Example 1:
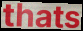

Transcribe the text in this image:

thats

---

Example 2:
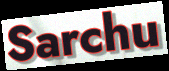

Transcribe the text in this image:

Sarchu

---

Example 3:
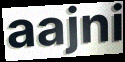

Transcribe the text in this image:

aajni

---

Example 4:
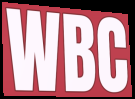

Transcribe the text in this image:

WBC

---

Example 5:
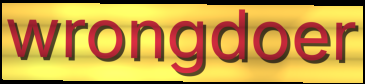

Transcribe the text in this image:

wrongdoer